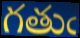
గతుఁ